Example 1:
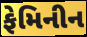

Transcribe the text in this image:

ફેમિનીન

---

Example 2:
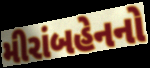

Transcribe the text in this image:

મીરાંબહેનનો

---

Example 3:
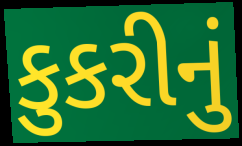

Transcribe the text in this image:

કુકરીનું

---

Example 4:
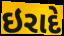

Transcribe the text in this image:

ઇરાદે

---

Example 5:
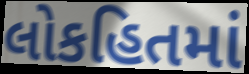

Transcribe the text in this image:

લોકહિતમાં